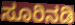
ಸೂರಿನಡಿ